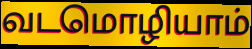
வடமொழியாம்